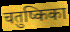
चतुष्किका